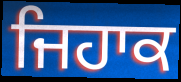
ਜਿਹਾਕ